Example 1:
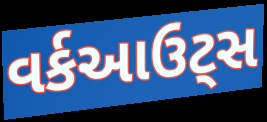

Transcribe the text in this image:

વર્કઆઉટ્સ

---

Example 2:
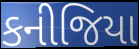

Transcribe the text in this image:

કનીજિયા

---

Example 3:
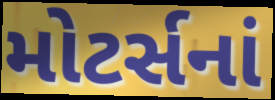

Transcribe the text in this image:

મોટર્સનાં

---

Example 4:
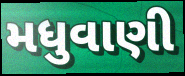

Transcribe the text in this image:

મધુવાણી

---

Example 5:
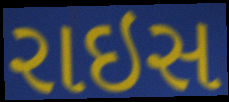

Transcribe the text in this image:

રાઇસ